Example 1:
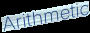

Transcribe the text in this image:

Arithmetic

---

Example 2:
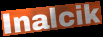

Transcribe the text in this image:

Inalcik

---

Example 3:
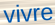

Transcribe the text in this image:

vivre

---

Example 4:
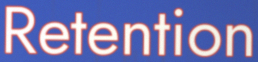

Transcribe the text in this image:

Retention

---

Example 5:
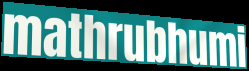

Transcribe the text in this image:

mathrubhumi